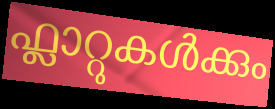
ഫ്ലാറ്റുകൾക്കും